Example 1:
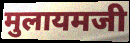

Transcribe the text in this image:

मुलायमजी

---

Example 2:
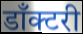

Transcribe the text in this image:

डाँक्टरी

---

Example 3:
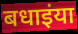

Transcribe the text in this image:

बधाइंया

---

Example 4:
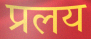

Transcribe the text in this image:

प्रलय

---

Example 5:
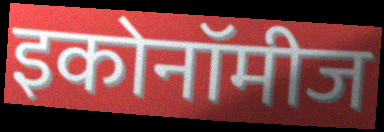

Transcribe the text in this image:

इकोनॉमीज